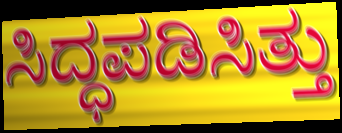
ಸಿದ್ಧಪಡಿಸಿತ್ತು